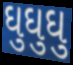
ઘુઘુઘુ